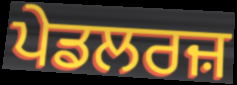
ਪੇਡਲਰਜ਼